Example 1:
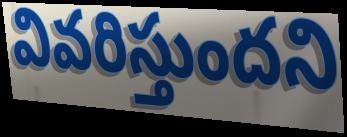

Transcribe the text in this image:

వివరిస్తుందని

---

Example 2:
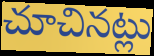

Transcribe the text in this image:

చూచినట్లు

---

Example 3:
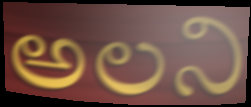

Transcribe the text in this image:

అలని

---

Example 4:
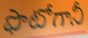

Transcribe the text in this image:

ఫొటోగానీ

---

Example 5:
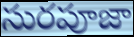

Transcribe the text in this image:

సురపూజా